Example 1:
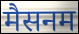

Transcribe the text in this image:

मैसनम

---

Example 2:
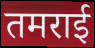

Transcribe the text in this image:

तमराई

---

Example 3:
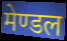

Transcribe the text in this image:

मेण्डल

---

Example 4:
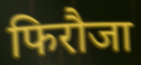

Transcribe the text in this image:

फिरौजा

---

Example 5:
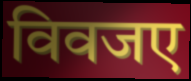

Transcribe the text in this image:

विवजए